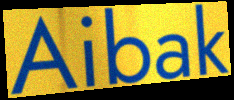
Aibak